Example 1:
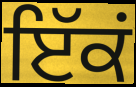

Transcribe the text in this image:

ਇੱਕਂ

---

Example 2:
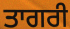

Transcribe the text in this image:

ਤਾਗਰੀ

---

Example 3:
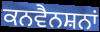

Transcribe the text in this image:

ਕਨਵੈਨਸ਼ਨਾਂ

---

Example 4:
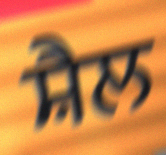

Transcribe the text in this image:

ਸ਼ੈਲ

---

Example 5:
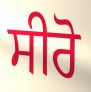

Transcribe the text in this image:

ਸੀਰੋ